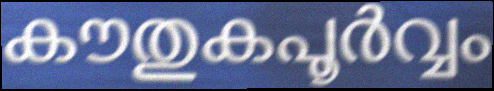
കൗതുകപൂർവ്വം